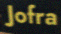
Jofra